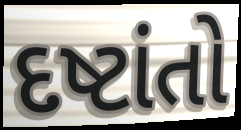
દષ્ટાંતો